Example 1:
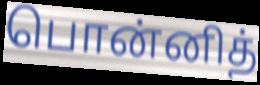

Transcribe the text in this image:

பொன்னித்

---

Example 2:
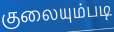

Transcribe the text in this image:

குலையும்படி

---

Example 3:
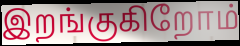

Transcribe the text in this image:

இறங்குகிறோம்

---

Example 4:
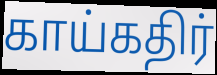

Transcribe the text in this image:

காய்கதிர்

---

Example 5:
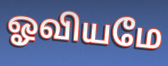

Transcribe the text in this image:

ஓவியமே